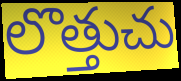
లొత్తుచు